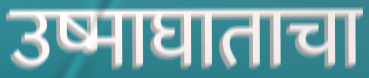
उष्माघाताचा